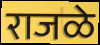
राजळे